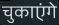
चुकाएंगे